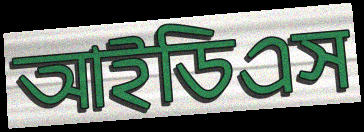
আইডিএস